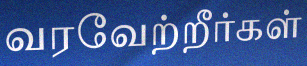
வரவேற்றீர்கள்